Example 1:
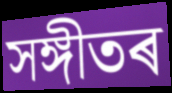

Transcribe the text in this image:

সঙ্গীতৰ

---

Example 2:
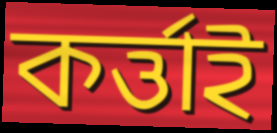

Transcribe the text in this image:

কৰ্ত্তাই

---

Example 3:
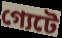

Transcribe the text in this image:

গ্যেটে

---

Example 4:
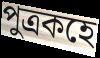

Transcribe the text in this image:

পুত্ৰকহে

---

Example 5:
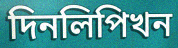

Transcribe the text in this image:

দিনলিপিখন